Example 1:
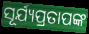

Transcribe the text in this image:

ସୂର୍ଯ୍ୟପ୍ରତାପଙ୍କ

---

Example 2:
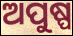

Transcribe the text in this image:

ଅପୁଷ୍ପ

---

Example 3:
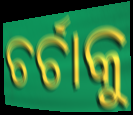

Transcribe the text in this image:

ଚର୍ଚାକୁ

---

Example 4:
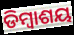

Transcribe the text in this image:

ଡିମ୍ବାଶୟ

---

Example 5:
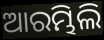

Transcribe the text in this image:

ଆରମ୍ଭିଲି